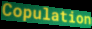
Copulation